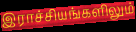
இராச்சியங்களிலும்